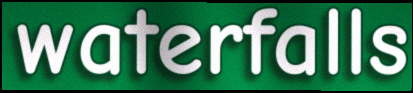
waterfalls